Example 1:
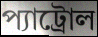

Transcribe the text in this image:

প্যাট্রোল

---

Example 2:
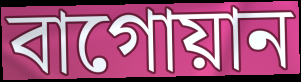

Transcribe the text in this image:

বাগোয়ান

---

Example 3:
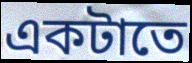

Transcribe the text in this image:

একটাতে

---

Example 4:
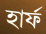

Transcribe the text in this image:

হার্ফ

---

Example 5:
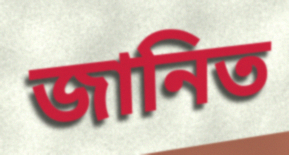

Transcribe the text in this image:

জানিত